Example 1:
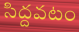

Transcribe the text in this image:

సిద్దవటం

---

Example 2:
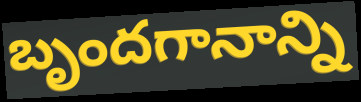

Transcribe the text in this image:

బృందగానాన్ని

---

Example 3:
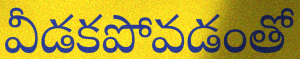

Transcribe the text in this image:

వీడకపోవడంతో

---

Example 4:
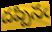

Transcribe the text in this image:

దప్పినఁ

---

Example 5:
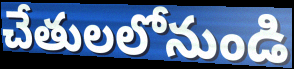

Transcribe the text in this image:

చేతులలోనుండి